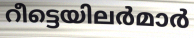
റീട്ടെയിലർമാർ